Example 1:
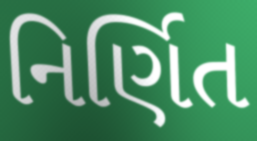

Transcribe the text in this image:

નિર્ણિત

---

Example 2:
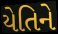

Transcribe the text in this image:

યેતિને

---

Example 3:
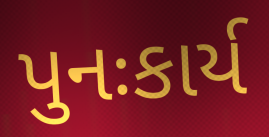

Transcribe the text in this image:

પુનઃકાર્ય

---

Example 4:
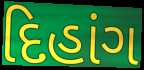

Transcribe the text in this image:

દિહાંગ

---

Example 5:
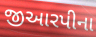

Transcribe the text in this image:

જીઆરપીના